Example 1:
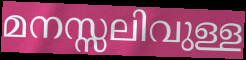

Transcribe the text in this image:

മനസ്സലിവുള്ള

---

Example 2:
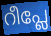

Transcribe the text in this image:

റീപ്ലേ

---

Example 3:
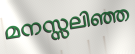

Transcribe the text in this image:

മനസ്സലിഞ്ഞ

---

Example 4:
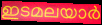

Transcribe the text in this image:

ഇടമലയാർ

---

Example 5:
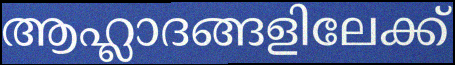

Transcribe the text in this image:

ആഹ്ലാദങ്ങളിലേക്ക്